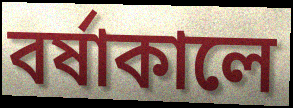
বর্ষাকালে